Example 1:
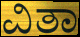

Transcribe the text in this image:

ವಿತಾ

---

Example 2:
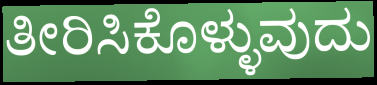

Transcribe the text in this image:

ತೀರಿಸಿಕೊಳ್ಳುವುದು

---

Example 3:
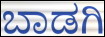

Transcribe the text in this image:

ಬಾಡಗಿ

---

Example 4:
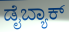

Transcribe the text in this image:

ಡೈಬ್ಯಾಕ್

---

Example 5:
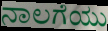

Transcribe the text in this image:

ನಾಲಗೆಯು